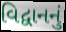
વિદ્વાનનું